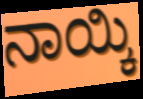
ನಾಯ್ಕಿ